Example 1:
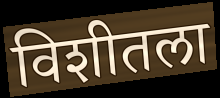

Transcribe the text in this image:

विशीतला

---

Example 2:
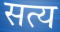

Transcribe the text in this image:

सत्य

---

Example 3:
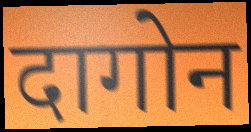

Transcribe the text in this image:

दागोन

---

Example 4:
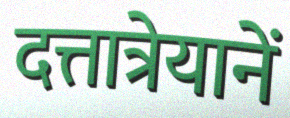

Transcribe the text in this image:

दत्तात्रेयानें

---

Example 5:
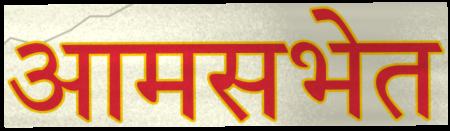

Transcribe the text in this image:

आमसभेत